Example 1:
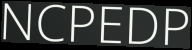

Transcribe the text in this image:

NCPEDP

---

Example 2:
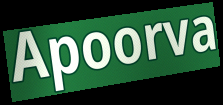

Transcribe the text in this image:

Apoorva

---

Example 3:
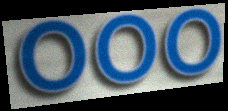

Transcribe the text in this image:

ooo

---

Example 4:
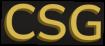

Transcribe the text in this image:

CSG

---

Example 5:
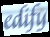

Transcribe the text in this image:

edify